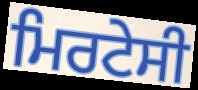
ਮਿਰਟੇਸੀ